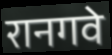
रानगवे